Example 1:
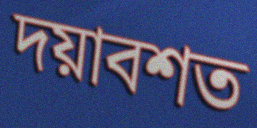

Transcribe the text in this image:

দয়াবশত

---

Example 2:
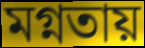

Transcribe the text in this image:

মগ্নতায়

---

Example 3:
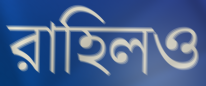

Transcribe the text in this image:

রাহিলও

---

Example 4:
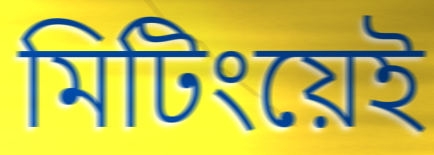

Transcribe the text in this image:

মিটিংয়েই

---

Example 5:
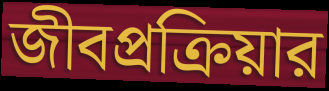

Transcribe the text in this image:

জীবপ্রক্রিয়ার